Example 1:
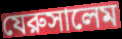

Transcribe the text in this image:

যেরুসালেম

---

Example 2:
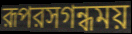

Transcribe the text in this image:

রূপরসগন্ধময়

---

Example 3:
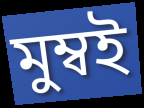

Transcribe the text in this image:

মুম্বই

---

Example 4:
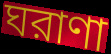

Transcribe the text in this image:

ঘরাণা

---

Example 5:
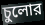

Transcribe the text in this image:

চুলোর